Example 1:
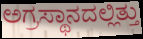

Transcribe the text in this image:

ಅಗ್ರಸ್ಥಾನದಲ್ಲಿತ್ತು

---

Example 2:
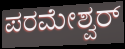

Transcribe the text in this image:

ಪರಮೇಶ್ವರ್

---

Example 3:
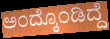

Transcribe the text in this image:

ಅಂದ್ಕೊಂಡಿದ್ದೆ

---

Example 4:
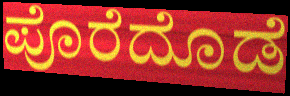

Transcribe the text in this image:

ಪೊರೆದೊಡೆ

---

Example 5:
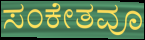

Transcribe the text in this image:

ಸಂಕೇತವೂ